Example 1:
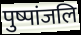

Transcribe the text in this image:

पुष्‍पांजलि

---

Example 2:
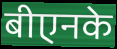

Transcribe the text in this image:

बीएनके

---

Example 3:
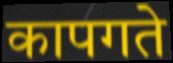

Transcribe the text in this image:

कापगते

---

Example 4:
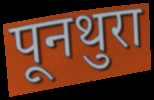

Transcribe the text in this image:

पूनथुरा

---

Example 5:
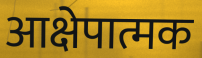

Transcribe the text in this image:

आक्षेपात्मक